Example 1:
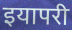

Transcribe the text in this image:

इयापरी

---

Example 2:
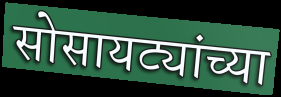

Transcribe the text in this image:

सोसायट्यांच्या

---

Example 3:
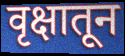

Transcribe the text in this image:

वृक्षातून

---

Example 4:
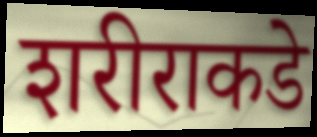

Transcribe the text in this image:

शरीराकडे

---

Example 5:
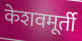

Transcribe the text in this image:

केशवमूर्ती